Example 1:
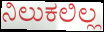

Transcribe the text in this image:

ನಿಲುಕಲಿಲ್ಲ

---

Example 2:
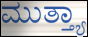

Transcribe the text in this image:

ಮುತ್ತ್ಯಾ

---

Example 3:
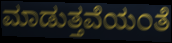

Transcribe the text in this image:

ಮಾಡುತ್ತವೆಯಂತೆ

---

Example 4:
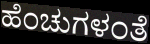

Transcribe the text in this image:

ಹೆಂಚುಗಳಂತೆ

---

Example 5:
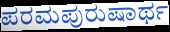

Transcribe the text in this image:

ಪರಮಪುರುಷಾರ್ಥ